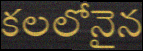
కలలోనైన